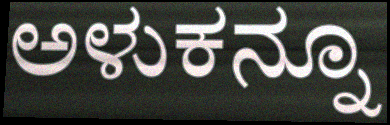
ಅಳುಕನ್ನೂ